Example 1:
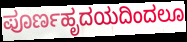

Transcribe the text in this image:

ಪೂರ್ಣಹೃದಯದಿಂದಲೂ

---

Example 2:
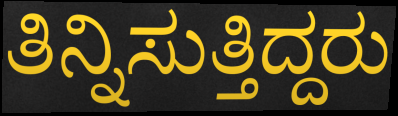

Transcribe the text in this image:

ತಿನ್ನಿಸುತ್ತಿದ್ದರು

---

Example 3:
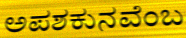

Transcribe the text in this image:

ಅಪಶಕುನವೆಂಬ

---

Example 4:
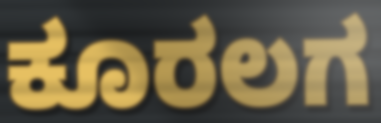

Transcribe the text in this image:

ಕೂರಲಗ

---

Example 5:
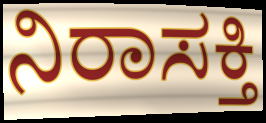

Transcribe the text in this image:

ನಿರಾಸಕ್ತಿ